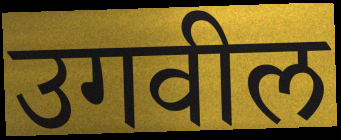
उगवील